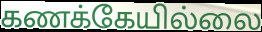
கணக்கேயில்லை